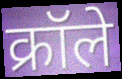
क्रॉले